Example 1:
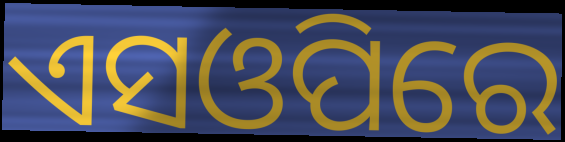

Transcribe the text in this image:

ଏସଓପିରେ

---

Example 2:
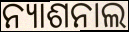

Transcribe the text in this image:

ନ୍ୟାଶନାଲ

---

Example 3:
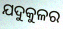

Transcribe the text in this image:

ଯଦୁକୁଳର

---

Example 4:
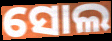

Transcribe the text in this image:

ସୋଲ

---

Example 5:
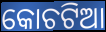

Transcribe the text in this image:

କୋଚଟିଆ